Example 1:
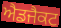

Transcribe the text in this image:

ਐਡਜੈਕਟ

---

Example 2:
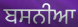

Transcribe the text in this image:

ਬਸਨੀਆ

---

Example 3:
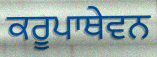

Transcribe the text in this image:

ਕਰੂਪਾਥੇਵਨ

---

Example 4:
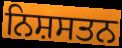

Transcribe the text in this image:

ਨਿਸ਼ਸਤਨ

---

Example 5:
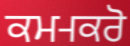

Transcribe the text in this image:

ਕਮ੍ਮਕਰੋ